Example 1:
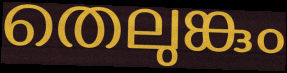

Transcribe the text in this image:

തെലുങ്കും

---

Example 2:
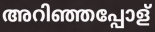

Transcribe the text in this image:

അറിഞ്ഞപ്പോള്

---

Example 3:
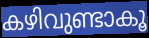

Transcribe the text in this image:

കഴിവുണ്ടാകൂ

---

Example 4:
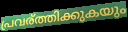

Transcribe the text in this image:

പ്രവര്ത്തിക്കുകയും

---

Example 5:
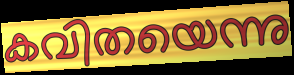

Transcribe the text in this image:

കവിതയെന്നു